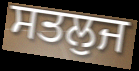
ਸਤਲੁਜ